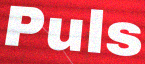
Puls